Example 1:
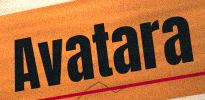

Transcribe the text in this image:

Avatara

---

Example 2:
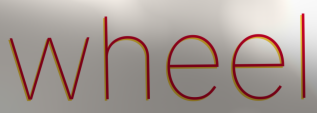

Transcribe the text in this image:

wheel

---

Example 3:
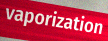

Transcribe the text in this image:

vaporization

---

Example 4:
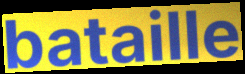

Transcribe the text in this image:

bataille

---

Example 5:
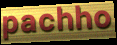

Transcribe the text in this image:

pachho